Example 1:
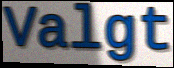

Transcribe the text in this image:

Valgt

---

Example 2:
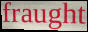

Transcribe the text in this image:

fraught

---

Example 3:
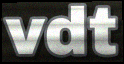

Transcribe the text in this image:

vdt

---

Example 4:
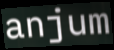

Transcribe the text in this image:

anjum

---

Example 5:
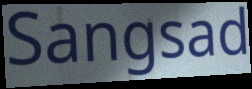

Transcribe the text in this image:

Sangsad